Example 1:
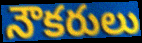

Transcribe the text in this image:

నౌకరులు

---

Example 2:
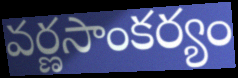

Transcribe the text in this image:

వర్ణసాంకర్యం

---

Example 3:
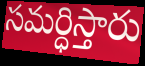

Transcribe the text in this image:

సమర్ధిస్తారు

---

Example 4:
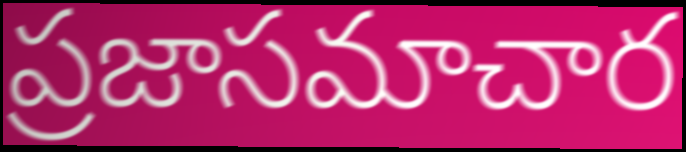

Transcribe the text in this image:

ప్రజాసమాచార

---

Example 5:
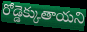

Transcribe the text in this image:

రోడ్డెక్కుతాయని